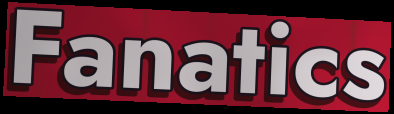
Fanatics